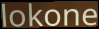
lokone